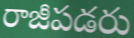
రాజీపడరు